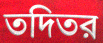
তদিতর